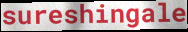
sureshingale